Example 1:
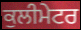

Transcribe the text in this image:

ਕੁਲੀਮੇਟਰ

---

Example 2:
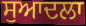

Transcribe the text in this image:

ਸੁਆਦਲਾ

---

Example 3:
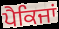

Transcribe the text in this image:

ਪੈਕਿਜਾਂ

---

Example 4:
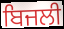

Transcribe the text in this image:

ਬਿਜਲੀ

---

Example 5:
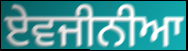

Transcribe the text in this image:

ਏਵਜੀਨੀਆ